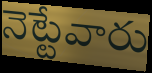
నెట్టేవారు